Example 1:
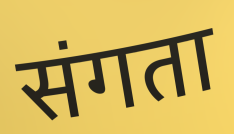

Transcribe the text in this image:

संगता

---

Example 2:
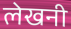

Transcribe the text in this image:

लेखनी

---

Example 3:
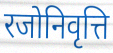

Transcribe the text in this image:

रजोनिवृत्ति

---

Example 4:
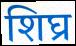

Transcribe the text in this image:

शिघ्र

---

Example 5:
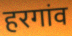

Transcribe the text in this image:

हरगांव